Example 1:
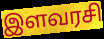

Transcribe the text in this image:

இளவரசி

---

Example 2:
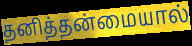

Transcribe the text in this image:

தனித்தன்மையால்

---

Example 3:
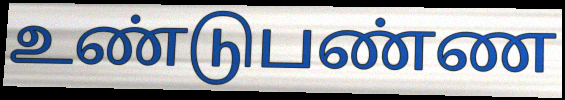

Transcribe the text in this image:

உண்டுபண்ண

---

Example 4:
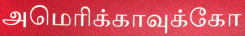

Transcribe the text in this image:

அமெரிக்காவுக்கோ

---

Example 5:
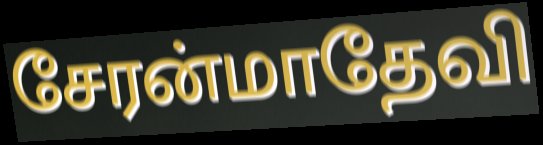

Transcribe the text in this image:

சேரன்மாதேவி